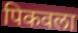
पिकवला